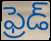
ఫ్రెడ్